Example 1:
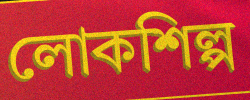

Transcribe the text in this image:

লোকশিল্প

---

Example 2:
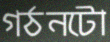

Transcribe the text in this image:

গঠনটো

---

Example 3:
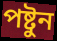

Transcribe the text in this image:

পষ্টুন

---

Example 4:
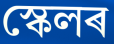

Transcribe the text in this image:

স্কেলৰ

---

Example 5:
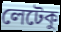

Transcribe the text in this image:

লেটেকু